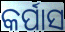
କର୍ପାସ